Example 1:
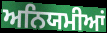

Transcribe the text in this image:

ਅਨਿਯਮੀਆਂ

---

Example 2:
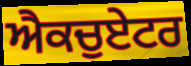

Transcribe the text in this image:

ਐਕਚੁਏਟਰ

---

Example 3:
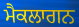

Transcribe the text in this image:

ਮੈਕਲਾਗਨ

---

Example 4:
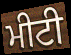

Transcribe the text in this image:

ਮੀਟੀ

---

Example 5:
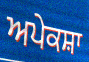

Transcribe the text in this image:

ਅਪੇਕਸ਼ਾ